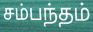
சம்பந்தம்